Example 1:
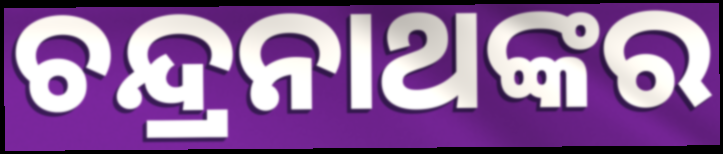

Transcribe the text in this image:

ଚନ୍ଦ୍ରନାଥଙ୍କର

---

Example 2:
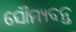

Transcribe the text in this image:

ସୌମ୍ୟବନ୍ତ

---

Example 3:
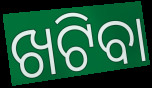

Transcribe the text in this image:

ଖଟିବା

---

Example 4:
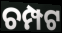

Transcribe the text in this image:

ଚମ୍ପଟ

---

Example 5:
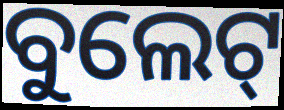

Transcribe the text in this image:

ବୁଲେଟ୍